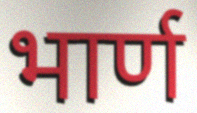
भार्ण